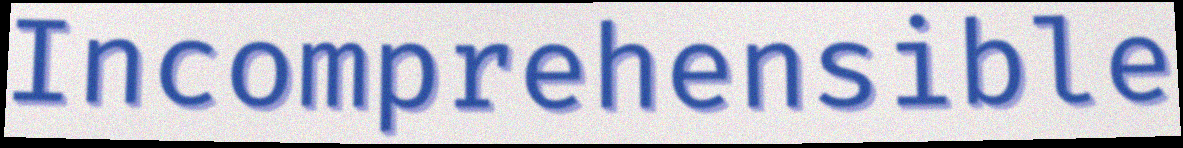
Incomprehensible